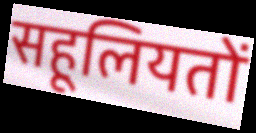
सहूलियतों